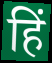
हिं